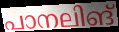
പാനലിങ്